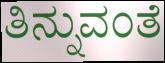
ತಿನ್ನುವಂತೆ